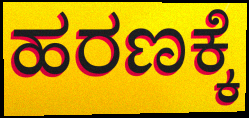
ಹರಣಕ್ಕೆ